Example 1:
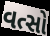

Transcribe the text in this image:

વત્સો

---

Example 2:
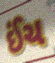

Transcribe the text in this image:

ઈંચ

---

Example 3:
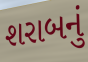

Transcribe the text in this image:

શરાબનું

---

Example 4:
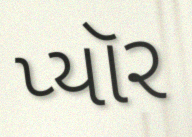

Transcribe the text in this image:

પ્યૉર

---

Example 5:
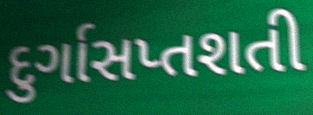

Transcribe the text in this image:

દુર્ગાસપ્તશતી